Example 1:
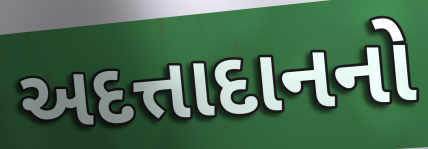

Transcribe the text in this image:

અદત્તાદાનનો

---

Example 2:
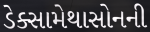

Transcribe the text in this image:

ડેક્સામેથાસોનની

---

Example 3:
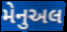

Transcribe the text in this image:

મેનુઅલ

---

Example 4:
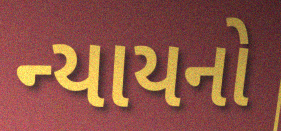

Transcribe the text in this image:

ન્યાયનો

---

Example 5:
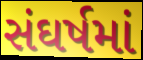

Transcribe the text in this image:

સંઘર્ષમાં